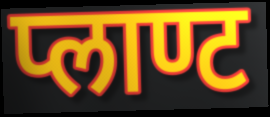
प्लाण्ट